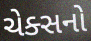
ચેક્સનો